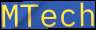
MTech